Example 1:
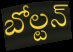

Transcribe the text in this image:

బోల్టన్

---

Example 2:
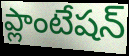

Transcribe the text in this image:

ప్లాంటేషన్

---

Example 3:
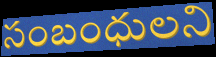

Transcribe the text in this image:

సంబంధులని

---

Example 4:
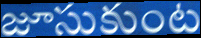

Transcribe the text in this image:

జూసుకుంట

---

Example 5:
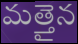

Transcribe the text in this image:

మత్తైన